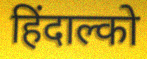
हिंदाल्को